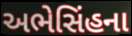
અભેસિંહના